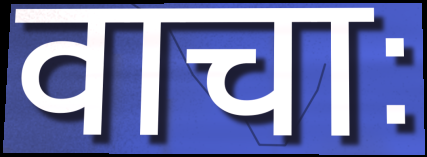
वाचाः